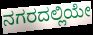
ನಗರದಲ್ಲಿಯೇ